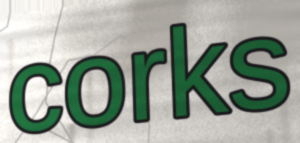
corks